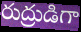
రుద్రుడిగా